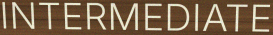
INTERMEDIATE